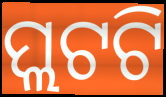
ପ୍ଲଟଟି